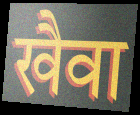
खैवा